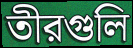
তীরগুলি